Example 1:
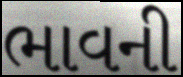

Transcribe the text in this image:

ભાવની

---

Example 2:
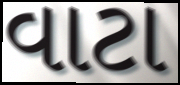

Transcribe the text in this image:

વાટા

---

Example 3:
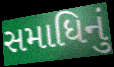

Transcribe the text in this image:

સમાધિનું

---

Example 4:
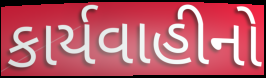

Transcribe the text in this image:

કાર્યવાહીનો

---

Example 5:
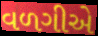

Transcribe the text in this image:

વળગીએ